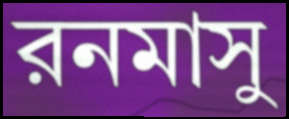
রনমাসু